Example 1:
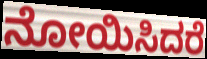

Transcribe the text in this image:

ನೋಯಿಸಿದರೆ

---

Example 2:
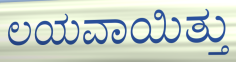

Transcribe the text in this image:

ಲಯವಾಯಿತ್ತು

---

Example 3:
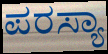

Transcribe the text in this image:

ಪರಸ್ಯಾ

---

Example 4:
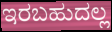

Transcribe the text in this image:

ಇರಬಹುದಲ್ಲ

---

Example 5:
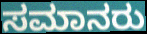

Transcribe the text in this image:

ಸಮಾನರು